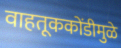
वाहतूककोंडीमुळे